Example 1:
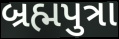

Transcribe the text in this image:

બ્રહ્મપુત્રા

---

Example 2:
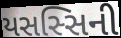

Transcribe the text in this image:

યસસ્સિની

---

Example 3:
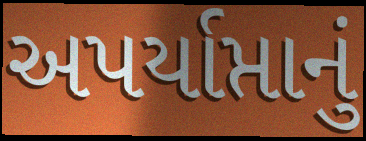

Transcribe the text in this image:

અપર્યાપ્તાનું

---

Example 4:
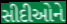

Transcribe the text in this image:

સીદીઓને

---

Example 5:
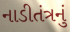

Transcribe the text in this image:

નાડીતંત્રનું